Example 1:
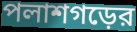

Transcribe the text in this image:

পলাশগড়ের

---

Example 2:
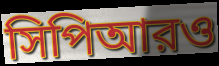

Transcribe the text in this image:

সিপিআরও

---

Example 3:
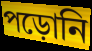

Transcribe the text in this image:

পড়োনি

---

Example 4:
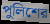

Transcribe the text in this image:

পুলিশের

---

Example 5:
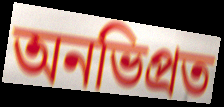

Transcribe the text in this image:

অনভিপ্রত